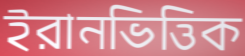
ইরানভিত্তিক